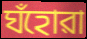
ঘঁহোৱা